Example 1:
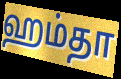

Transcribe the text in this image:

ஹம்தா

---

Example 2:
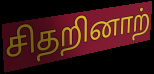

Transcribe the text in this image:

சிதறினாற்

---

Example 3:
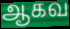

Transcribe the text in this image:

ஆகவ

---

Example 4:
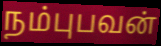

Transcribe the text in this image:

நம்புபவன்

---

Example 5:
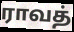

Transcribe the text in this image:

ராவத்